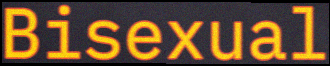
Bisexual